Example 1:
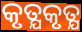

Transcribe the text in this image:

କୃତ୍ଯକୃତ୍ଯ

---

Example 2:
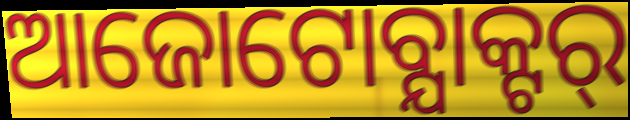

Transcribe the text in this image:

ଆଜୋଟୋବ୍ଯାକ୍ଟର୍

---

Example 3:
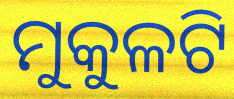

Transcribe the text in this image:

ମୁକୁଳଟି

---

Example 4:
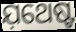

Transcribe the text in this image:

ଯ଼ଥେଷ୍ଟ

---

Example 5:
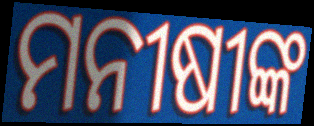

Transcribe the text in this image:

ମନୀଷୀଙ୍କ